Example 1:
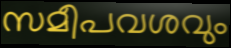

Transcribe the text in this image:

സമീപവശവും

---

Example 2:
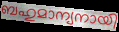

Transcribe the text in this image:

ബഹുമാന്യനായി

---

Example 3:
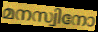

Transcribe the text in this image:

മനസ്വിനോ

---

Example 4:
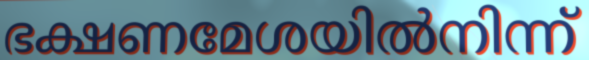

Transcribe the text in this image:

ഭക്ഷണമേശയിൽനിന്ന്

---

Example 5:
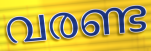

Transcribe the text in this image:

വരണ്ട